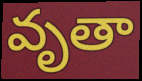
వృతా